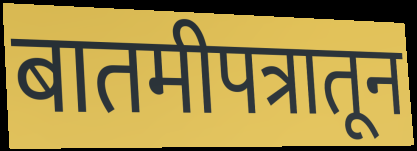
बातमीपत्रातून